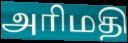
அரிமதி